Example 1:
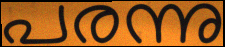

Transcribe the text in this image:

പരന്നു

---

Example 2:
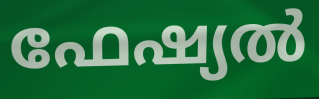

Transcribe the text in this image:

ഫേഷ്യൽ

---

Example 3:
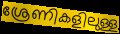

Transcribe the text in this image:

ശ്രേണികളിലുള്ള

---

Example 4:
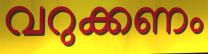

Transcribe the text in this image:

വറുക്കണം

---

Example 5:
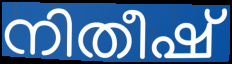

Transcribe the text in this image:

നിതീഷ്